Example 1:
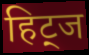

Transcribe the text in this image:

हिट्ज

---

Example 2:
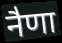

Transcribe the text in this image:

नैणा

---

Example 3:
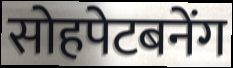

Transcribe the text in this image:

सोहपेटबनेंग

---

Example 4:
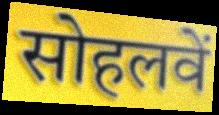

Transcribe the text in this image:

सोहलवें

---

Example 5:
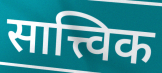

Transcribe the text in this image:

सात्त्विक